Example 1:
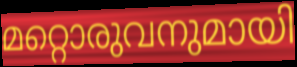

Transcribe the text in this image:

മറ്റൊരുവനുമായി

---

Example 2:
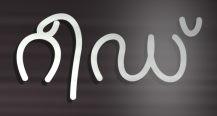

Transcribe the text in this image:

റീഡ്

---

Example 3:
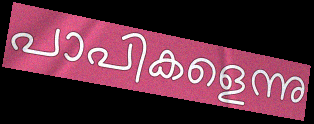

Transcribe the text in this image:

പാപികളെന്നു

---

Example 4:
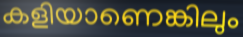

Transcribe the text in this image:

കളിയാണെങ്കിലും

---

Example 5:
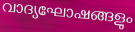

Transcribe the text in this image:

വാദ്യഘോഷങ്ങളും